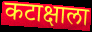
कटाक्षाला